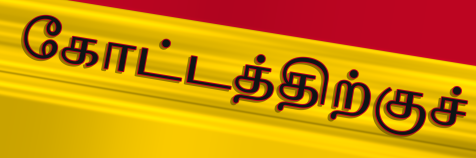
கோட்டத்திற்குச்